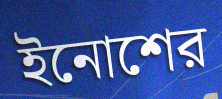
ইনোশের